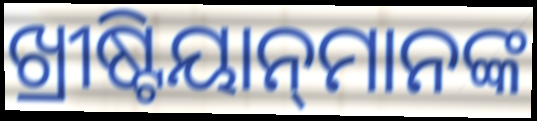
ଖ୍ରୀଷ୍ଟିୟାନ୍‌ମାନଙ୍କ